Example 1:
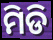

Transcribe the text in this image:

ମିଡି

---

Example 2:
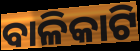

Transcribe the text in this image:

ବାଳିକାଟି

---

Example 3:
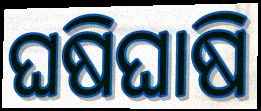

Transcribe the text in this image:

ଘଷିଘାଷି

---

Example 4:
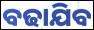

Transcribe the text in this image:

ବଢାଯିବ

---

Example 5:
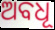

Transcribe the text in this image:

ଅବଧୂ